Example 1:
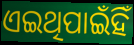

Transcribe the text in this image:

ଏଇଥିପାଇଁହିଁ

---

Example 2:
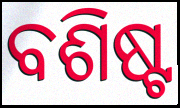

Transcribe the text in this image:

ବଶିଷ୍ଟ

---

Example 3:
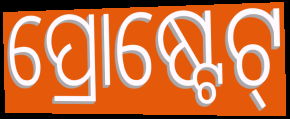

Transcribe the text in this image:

ପ୍ରୋଷ୍ଟେଟ୍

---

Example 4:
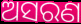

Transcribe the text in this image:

ଅସରଣ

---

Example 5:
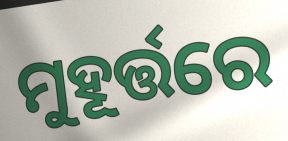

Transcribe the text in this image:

ମୁହୂର୍ତ୍ତରେ